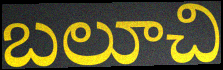
బలూచి